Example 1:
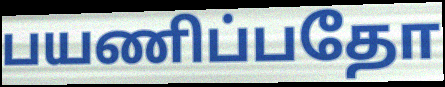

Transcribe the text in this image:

பயணிப்பதோ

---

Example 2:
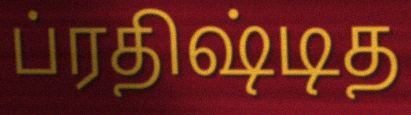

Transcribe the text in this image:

ப்ரதிஷ்டித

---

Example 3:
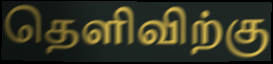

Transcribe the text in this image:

தெளிவிற்கு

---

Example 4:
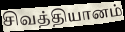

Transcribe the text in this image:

சிவத்தியானம்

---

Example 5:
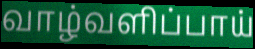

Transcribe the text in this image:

வாழ்வளிப்பாய்